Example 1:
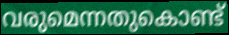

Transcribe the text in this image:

വരുമെന്നതുകൊണ്ട്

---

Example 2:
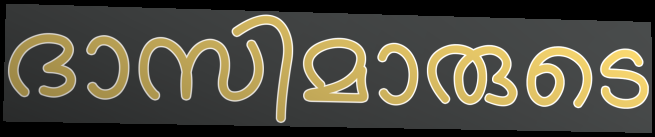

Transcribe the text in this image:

ദാസിമാരുടെ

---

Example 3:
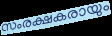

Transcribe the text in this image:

സംരക്ഷകരായും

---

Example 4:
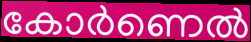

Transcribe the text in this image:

കോർണെൽ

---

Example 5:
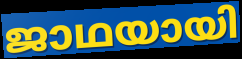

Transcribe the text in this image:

ജാഥയായി